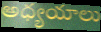
అధ్యయాలు